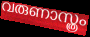
വരുണാസ്ത്രം